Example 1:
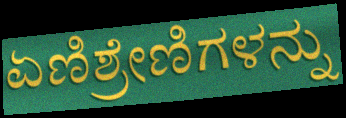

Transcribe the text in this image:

ಏಣಿಶ್ರೇಣಿಗಳನ್ನು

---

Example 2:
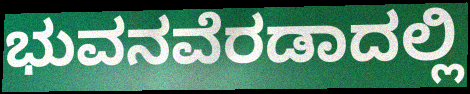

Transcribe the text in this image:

ಭುವನವೆರಡಾದಲ್ಲಿ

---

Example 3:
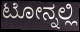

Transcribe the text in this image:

ಟೋನ್ನಲ್ಲಿ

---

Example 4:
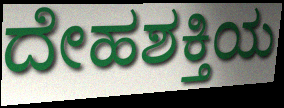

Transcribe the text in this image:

ದೇಹಶಕ್ತಿಯ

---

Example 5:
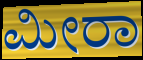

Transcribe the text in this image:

ಮೀರಾ